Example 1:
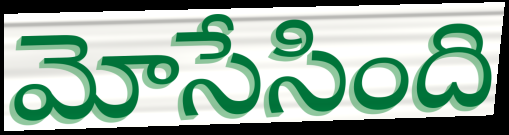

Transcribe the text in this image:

మోసేసింది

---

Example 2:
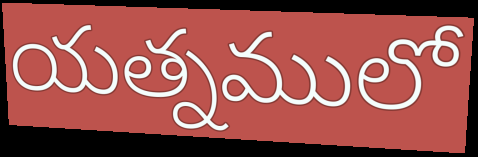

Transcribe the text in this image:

యత్నములో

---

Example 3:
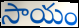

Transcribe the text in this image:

సాయం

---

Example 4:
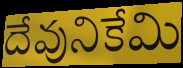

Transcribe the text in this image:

దేవునికేమి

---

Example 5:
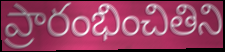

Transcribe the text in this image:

ప్రారంభించితిని